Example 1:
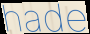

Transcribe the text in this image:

hade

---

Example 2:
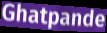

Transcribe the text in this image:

Ghatpande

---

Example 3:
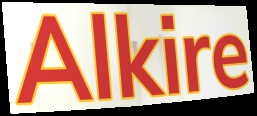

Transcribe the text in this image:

Alkire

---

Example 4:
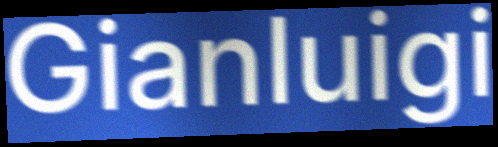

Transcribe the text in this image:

Gianluigi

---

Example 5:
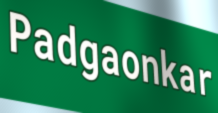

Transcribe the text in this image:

Padgaonkar